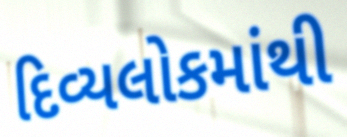
દિવ્યલોકમાંથી